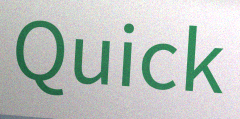
Quick